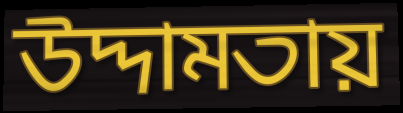
উদ্দামতায়